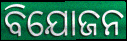
ବିଯୋଜନ